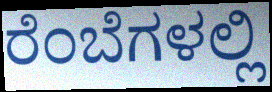
ರೆಂಬೆಗಳಲ್ಲಿ